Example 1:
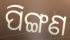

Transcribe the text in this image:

ପିଙ୍ଗଣ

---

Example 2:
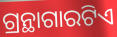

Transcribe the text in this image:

ଗ୍ରନ୍ଥାଗାରଟିଏ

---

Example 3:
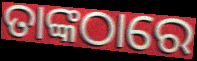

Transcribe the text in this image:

ତାଙ୍କଠାରେ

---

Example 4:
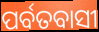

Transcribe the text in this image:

ପର୍ବତବାସୀ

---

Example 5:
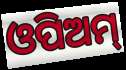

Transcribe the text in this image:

ଓପିଅମ୍